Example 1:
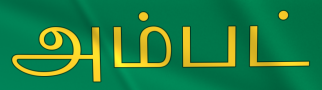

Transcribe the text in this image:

அம்பட்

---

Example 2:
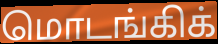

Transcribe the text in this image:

மொடங்கிக்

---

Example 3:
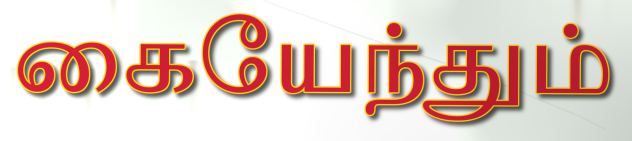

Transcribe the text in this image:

கையேந்தும்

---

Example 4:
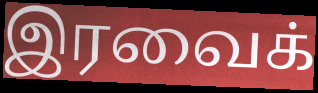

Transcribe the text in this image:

இரவைக்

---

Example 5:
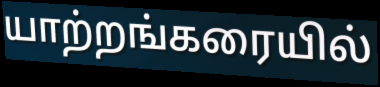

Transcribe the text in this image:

யாற்றங்கரையில்